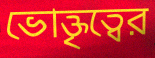
ভোক্তৃত্বের